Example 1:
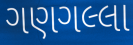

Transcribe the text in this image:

ગણગલ્લા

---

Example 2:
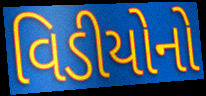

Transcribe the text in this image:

વિડીયોનો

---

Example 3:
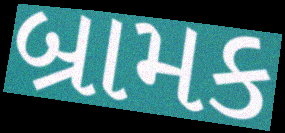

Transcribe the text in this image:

બ્રામક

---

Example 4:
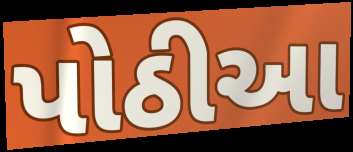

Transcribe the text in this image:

પોઠીઆ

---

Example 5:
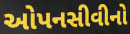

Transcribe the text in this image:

ઓપનસીવીનો